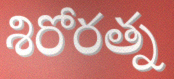
శిరోరత్న